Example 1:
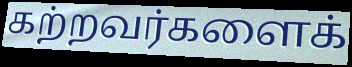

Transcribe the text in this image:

கற்றவர்களைக்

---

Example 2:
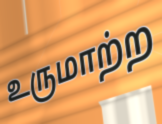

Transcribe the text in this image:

உருமாற்ற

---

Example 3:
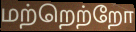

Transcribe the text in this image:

மற்றெற்றோ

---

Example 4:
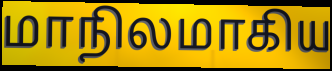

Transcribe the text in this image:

மாநிலமாகிய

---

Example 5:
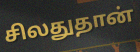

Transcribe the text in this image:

சிலதுதான்